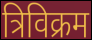
त्रिविक्रम